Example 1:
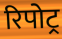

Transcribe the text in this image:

रिपोट्र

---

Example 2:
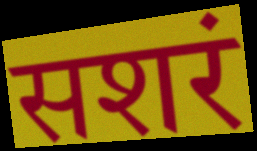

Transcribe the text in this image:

सशरं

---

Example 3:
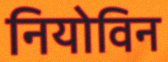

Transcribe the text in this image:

नियोविन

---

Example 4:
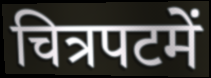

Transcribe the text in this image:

चित्रपटमें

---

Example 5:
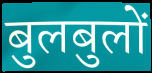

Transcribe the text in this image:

बुलबुलों